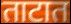
ताटात